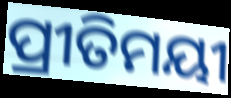
ପ୍ରୀତିମୟୀ